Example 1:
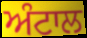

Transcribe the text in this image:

ਅੰਟਾਲ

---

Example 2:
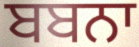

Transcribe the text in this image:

ਬਬਨਾ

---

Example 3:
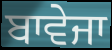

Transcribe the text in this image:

ਬਾਵੇਜਾ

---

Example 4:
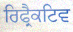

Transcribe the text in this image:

ਰਿਫ੍ਰੈਕਟਿਵ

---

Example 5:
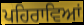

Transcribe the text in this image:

ਪਹਿਰਾਵਿਆਂ